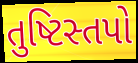
તુષ્ટિસ્તપો